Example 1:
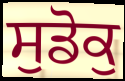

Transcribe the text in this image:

ਸੁਡੋਕੁ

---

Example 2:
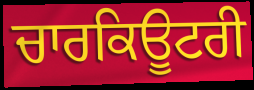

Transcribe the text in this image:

ਚਾਰਕਿਊਟਰੀ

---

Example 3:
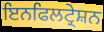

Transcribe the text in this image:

ਇਨਫਿਲਟ੍ਰੇਸ਼ਨ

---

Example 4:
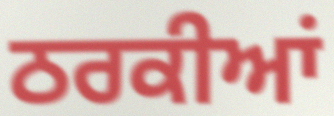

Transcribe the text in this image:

ਠਰਕੀਆਂ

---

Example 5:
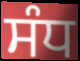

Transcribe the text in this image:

ਸੰਧ